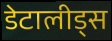
डेटालीड्स